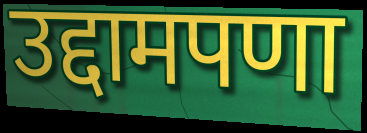
उद्दामपणा